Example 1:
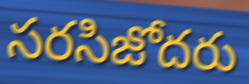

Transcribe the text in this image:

సరసిజోదరు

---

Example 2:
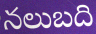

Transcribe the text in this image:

నలుబది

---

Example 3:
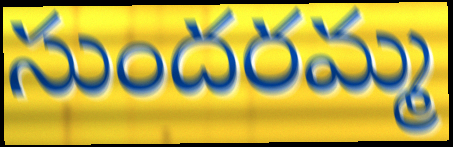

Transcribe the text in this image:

సుందరమ్మ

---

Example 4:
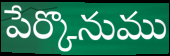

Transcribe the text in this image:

పేర్కొనుము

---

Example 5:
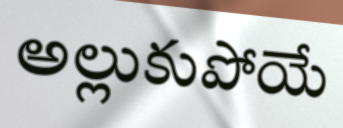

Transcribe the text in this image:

అల్లుకుపోయే